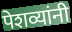
पेशव्यांनी